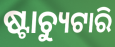
ଷ୍ଟାଚ୍ୟୁଟାରି